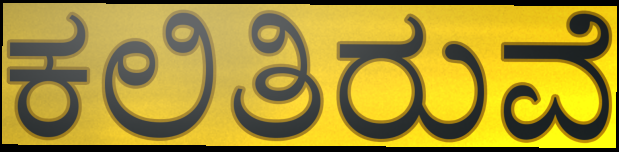
ಕಲಿತಿರುವೆ